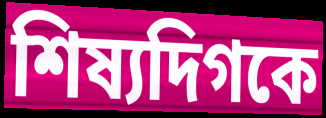
শিষ্যদিগকে